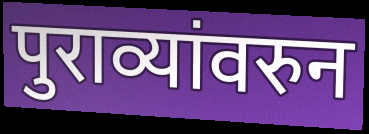
पुराव्यांवरुन